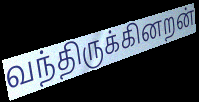
வந்திருக்கினறன்